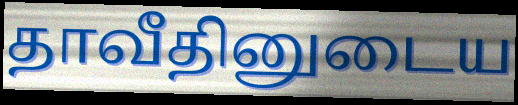
தாவீதினுடைய